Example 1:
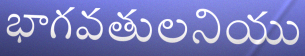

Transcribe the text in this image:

భాగవతులనియు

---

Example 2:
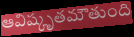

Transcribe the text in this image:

ఆవిష్కృతమౌతుంది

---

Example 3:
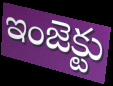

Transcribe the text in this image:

ఇంజెక్టు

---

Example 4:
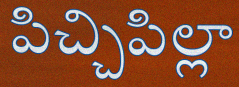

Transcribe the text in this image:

పిచ్చిపిల్లా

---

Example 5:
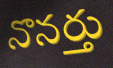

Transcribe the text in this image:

నొనర్తు